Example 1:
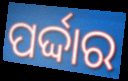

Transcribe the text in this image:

ପର୍ଦ୍ଦାର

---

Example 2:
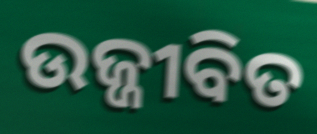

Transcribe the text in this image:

ଉଜ୍ଜୀବିତ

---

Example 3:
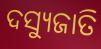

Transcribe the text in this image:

ଦସ୍ୟୁଜାତି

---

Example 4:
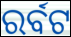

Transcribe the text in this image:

ରର୍ବଟ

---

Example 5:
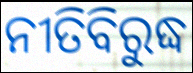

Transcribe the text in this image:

ନୀତିବିରୁଦ୍ଧ